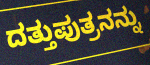
ದತ್ತುಪುತ್ರನನ್ನು